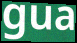
gua